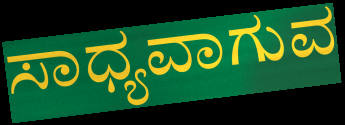
ಸಾಧ್ಯವಾಗುವ